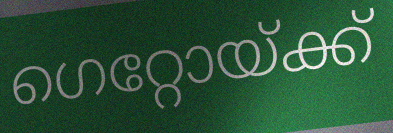
ഗെറ്റോയ്ക്ക്